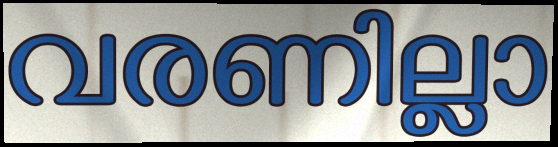
വരണില്ലാ